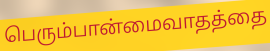
பெரும்பான்மைவாதத்தை